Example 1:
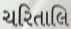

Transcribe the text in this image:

ચરિતાલિ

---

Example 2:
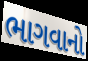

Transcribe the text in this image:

ભાગવાનો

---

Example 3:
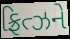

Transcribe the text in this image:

ફ્રિત્ઝને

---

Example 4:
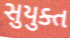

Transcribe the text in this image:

સુયુક્ત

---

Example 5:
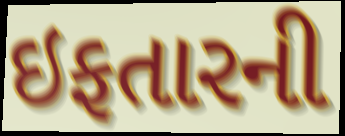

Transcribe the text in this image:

ઇફતારની